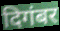
दिगंबर